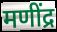
मणींद्र